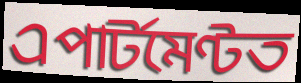
এপাৰ্টমেণ্টত